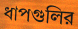
ধাপগুলির